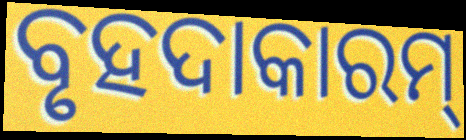
ବୃହଦାକାରମ୍